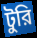
টুরি